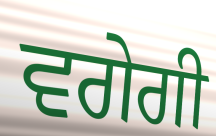
ਵਗੇਗੀ